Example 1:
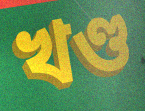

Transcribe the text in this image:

খণ্ড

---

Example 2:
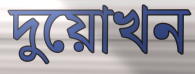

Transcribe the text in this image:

দুয়োখন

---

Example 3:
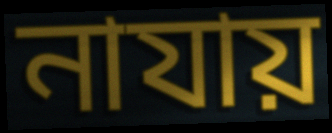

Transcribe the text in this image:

নাযায়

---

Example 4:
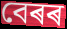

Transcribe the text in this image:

বেৰৰ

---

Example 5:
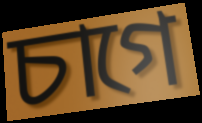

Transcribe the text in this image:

চাগে